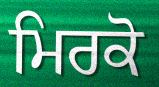
ਮਿਰਕੋ